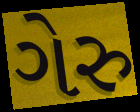
ગેરુ